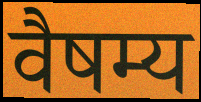
वैषम्य